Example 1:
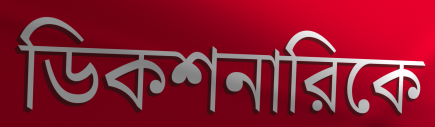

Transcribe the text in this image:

ডিকশনারিকে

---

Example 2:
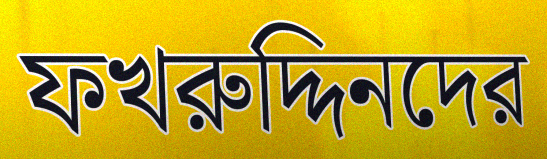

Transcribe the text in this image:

ফখরুদ্দিনদের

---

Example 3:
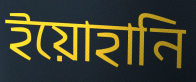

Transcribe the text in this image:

ইয়োহানি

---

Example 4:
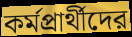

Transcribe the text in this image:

কর্মপ্রার্থীদের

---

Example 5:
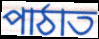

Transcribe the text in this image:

পাঠাত